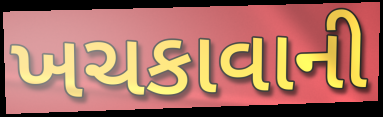
ખચકાવાની